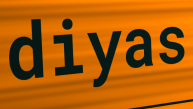
diyas